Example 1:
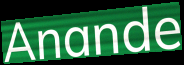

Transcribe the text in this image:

Anande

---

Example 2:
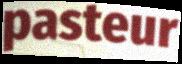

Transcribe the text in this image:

pasteur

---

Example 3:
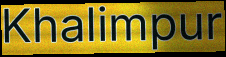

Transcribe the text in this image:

Khalimpur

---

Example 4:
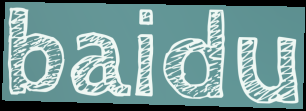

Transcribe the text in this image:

baidu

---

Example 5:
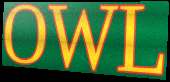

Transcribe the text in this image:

OWL